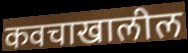
कवचाखालील